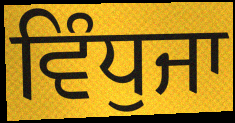
ਵਿੰਧੁਜਾ